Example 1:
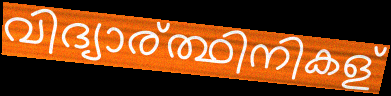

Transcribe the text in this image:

വിദ്യാര്ത്ഥിനികള്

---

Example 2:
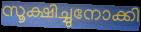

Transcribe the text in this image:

സൂക്ഷിച്ചുനോക്കി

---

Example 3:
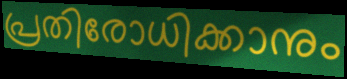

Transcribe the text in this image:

പ്രതിരോധിക്കാനും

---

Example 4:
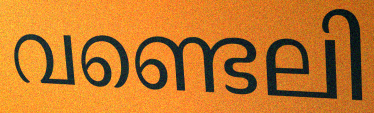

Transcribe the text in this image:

വണ്ടെലി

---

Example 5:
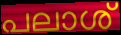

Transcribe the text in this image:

പലാശ്